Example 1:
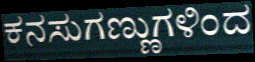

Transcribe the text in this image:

ಕನಸುಗಣ್ಣುಗಳಿಂದ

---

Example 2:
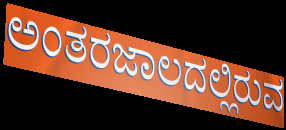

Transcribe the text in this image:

ಅಂತರಜಾಲದಲ್ಲಿರುವ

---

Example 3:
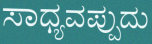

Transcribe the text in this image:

ಸಾಧ್ಯವಪ್ಪುದು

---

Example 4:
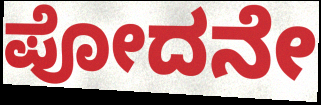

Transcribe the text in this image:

ಪೋದನೇ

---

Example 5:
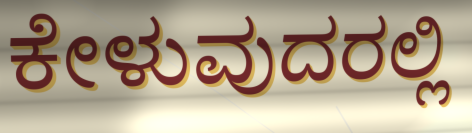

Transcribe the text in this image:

ಕೇಳುವುದರಲ್ಲಿ